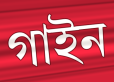
গাইন